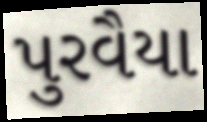
પુરવૈયા